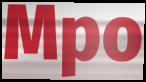
Mpo